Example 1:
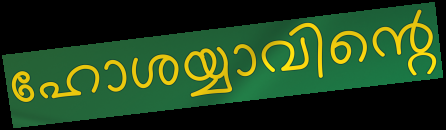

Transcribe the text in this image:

ഹോശയ്യാവിന്റെ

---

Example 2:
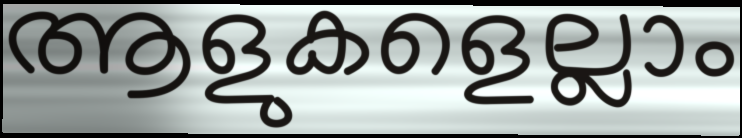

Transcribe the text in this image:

ആളുകളെല്ലാം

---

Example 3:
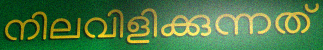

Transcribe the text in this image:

നിലവിളിക്കുന്നത്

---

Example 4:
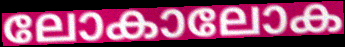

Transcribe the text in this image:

ലോകാലോക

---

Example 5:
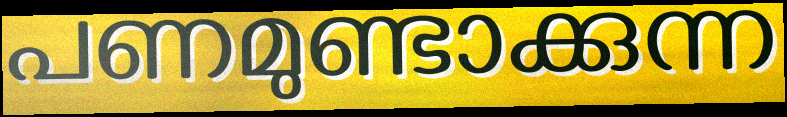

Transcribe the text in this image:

പണമുണ്ടാക്കുന്ന